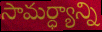
సామర్ధ్యాన్ని